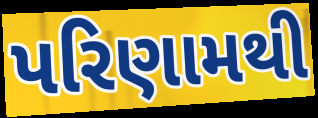
પરિણામથી